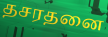
தசரதனை